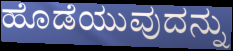
ಹೊಡೆಯುವುದನ್ನು